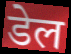
डेल